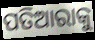
ପତିଆରାକୁ